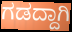
ಗಡದ್ದಾಗಿ